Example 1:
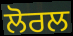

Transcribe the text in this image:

ਲੋਰਲ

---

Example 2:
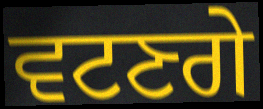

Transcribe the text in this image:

ਵਟਣਗੇ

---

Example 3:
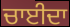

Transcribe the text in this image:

ਚਾਈਦਾ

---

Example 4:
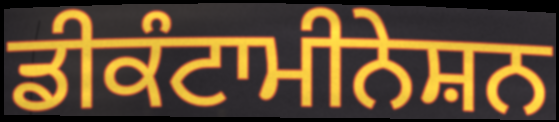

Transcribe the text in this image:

ਡੀਕੰਟਾਮੀਨੇਸ਼ਨ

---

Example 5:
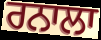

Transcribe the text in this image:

ਰਨਾਲਾ